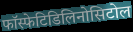
फॉस्फेटिडिलिनोसिटोल